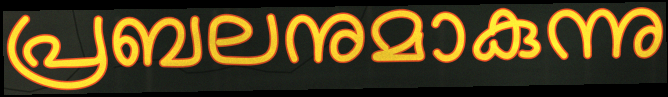
പ്രബലനുമാകുന്നു